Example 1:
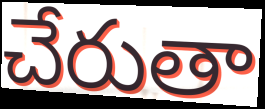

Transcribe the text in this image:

చేరుతా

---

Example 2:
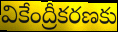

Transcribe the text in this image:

వికేంద్రీకరణకు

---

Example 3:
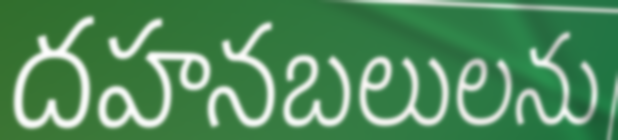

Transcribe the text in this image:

దహనబలులను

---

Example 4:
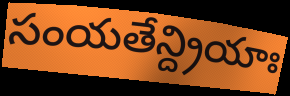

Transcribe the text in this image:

సంయతేన్ద్రియాః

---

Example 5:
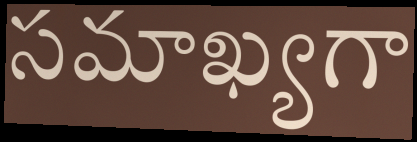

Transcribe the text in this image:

సమాఖ్యగా